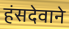
हंसदेवाने